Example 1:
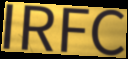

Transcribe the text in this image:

IRFC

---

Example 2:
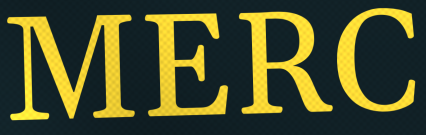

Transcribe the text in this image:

MERC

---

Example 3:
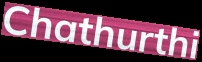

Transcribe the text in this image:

Chathurthi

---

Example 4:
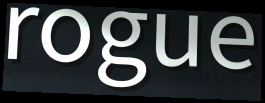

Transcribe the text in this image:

rogue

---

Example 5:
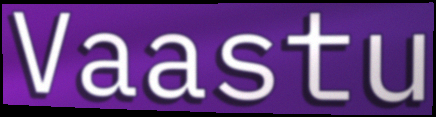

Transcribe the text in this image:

Vaastu